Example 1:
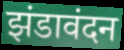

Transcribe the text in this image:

झंडावंदन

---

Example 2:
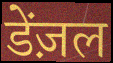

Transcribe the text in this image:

डेंज़ल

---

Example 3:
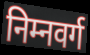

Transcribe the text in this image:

निम्नवर्ग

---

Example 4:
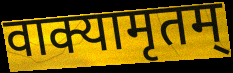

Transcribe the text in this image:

वाक्यामृतम्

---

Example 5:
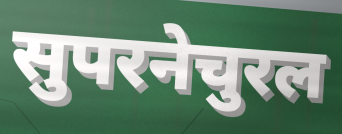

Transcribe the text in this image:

सुपरनेचुरल